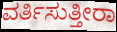
ವರ್ತಿಸುತ್ತೀರಾ